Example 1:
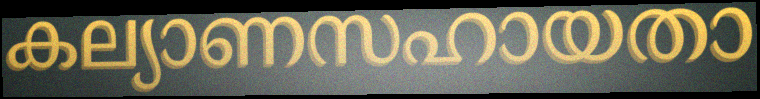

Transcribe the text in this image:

കല്യാണസഹായതാ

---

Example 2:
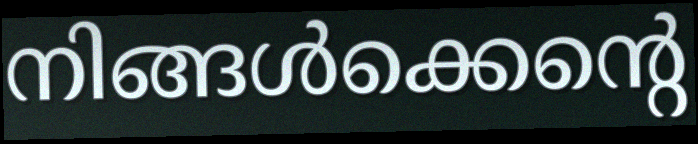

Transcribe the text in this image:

നിങ്ങൾക്കെന്റെ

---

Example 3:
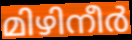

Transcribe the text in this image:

മിഴിനീർ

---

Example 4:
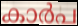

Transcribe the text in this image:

കാർപ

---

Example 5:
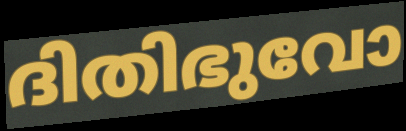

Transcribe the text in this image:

ദിതിഭുവോ